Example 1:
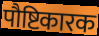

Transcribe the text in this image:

पौष्टिकारक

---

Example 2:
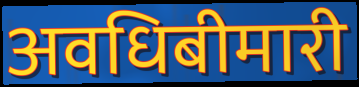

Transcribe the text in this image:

अवधिबीमारी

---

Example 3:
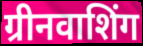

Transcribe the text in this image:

ग्रीनवाशिंग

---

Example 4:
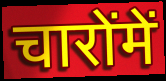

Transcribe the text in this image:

चारोंमें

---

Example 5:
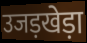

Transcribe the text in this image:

उजड़खेड़ा